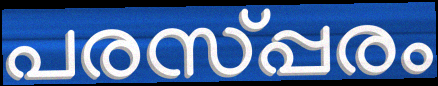
പരസ്പ്പരം